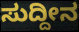
ಸುದ್ದೀನ